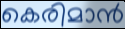
കെരിമാൻ